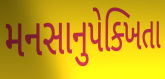
મનસાનુપેક્ખિતા